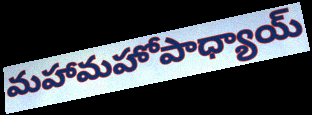
మహామహోపాధ్యాయ్